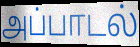
அப்பாடல்